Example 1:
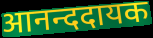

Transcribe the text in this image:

आनन्ददायक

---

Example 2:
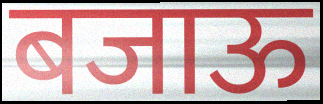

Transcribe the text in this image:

बजाऊ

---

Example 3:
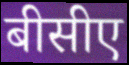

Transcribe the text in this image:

बीसीए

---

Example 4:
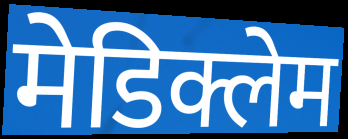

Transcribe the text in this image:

मेडिक्लेम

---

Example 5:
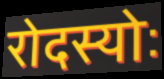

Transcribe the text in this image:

रोदस्योः